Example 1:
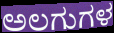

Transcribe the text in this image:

ಅಲಗುಗಳ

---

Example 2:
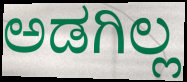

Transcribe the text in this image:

ಅಡಗಿಲ್ಲ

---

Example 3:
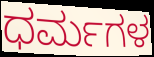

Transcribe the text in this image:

ಧರ್ಮಗಳ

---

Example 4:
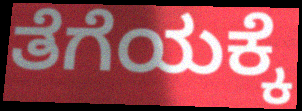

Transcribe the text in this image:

ತೆಗೆಯಕ್ಕೆ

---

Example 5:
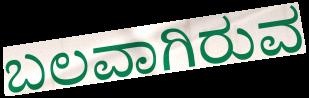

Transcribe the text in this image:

ಬಲವಾಗಿರುವ